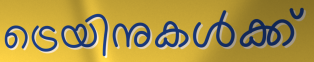
ട്രെയിനുകൾക്ക്